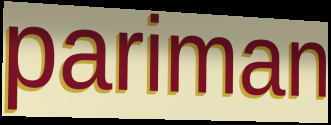
pariman